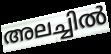
അലച്ചിൽ